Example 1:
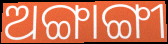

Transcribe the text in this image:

ଅଙ୍ଗାଙ୍ଗୀ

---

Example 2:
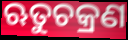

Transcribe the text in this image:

ଋତୁଚକ୍ରଣ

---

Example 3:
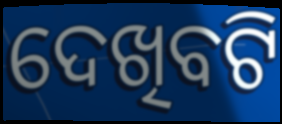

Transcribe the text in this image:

ଦେଖିବଟି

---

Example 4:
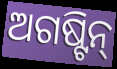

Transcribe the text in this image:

ଅଗଷ୍ଟିନ୍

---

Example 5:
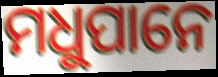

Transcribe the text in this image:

ମଧୁପାନେ